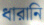
ধারানি